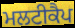
ਮਲਟੀਕੈਪ